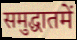
समुद्धातमें